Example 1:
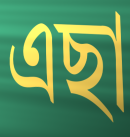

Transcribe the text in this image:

এছা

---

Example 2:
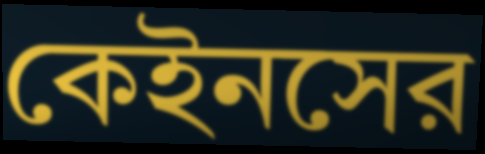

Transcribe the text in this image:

কেইনসের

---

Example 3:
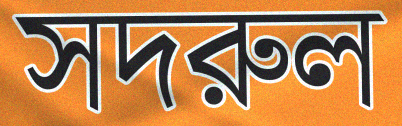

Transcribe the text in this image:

সদরুল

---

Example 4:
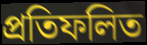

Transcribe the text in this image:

প্রতিফলিত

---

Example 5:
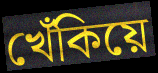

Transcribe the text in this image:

খেঁকিয়ে